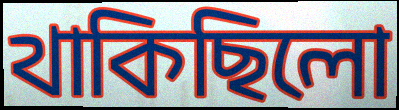
থাকিছিলো